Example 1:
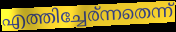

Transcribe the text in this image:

എത്തിച്ചേര്ന്നതെന്ന്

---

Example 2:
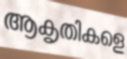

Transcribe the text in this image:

ആകൃതികളെ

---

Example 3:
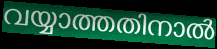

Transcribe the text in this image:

വയ്യാത്തതിനാൽ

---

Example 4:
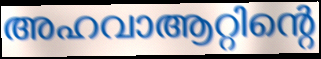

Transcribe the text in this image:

അഹവാആറ്റിന്റെ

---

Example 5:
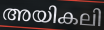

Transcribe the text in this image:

അയികലി